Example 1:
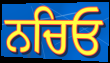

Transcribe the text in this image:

ਨਚਿਓ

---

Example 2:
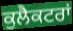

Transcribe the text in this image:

ਕੁਲੈਕਟਰਾਂ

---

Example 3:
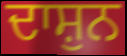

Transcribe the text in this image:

ਦਾਸ਼ੁਨ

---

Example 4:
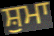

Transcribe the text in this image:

ਸ਼ੁਮਾ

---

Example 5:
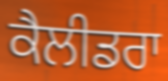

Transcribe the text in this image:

ਕੈਲੀਡਰਾ